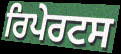
ਰਿਪੇਰਟਸ